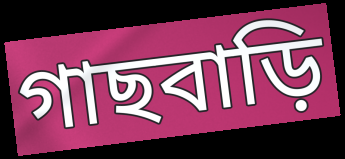
গাছবাড়ি